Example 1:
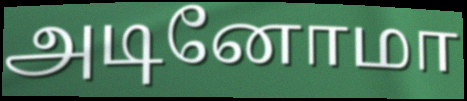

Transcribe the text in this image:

அடினோமா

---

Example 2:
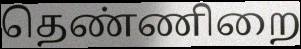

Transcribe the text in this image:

தெண்ணிறை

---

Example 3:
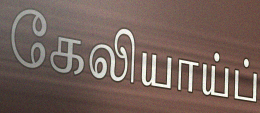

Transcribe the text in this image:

கேலியாய்ப்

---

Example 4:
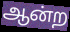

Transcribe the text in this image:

ஆன்ற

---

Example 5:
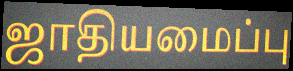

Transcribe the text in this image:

ஜாதியமைப்பு